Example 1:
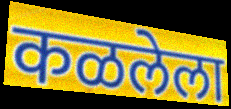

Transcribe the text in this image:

कळलेला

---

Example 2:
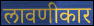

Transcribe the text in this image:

लावणीकार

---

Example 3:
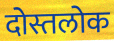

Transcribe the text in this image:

दोस्तलोक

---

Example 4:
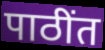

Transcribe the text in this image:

पाठींत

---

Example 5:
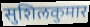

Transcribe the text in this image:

सुशिलकुमार